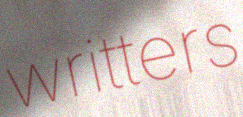
writters